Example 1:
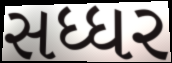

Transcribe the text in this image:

સધ્ધર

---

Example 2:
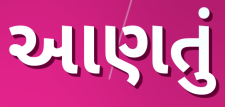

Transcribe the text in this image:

આણતું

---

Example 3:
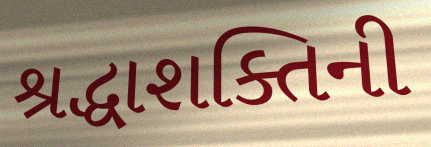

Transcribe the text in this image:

શ્રદ્ધાશક્તિની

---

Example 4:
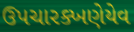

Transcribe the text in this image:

ઉપચારક્ખણેયેવ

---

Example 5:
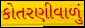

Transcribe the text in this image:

કોતરણીવાળું